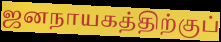
ஜனநாயகத்திற்குப்